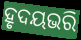
ହୃଦୟଭରି